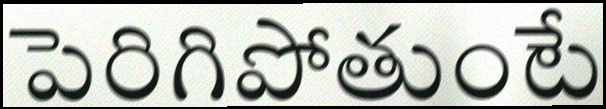
పెరిగిపోతుంటే